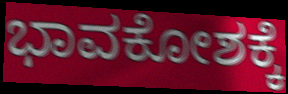
ಭಾವಕೋಶಕ್ಕೆ